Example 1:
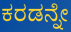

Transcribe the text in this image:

ಕರಡನ್ನೇ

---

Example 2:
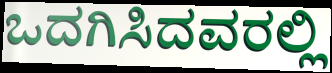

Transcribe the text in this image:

ಒದಗಿಸಿದವರಲ್ಲಿ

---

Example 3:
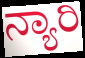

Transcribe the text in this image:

ನ್ಯಾರಿ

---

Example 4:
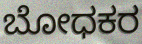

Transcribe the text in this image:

ಬೋಧಕರ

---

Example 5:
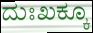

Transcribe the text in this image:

ದುಃಖಕ್ಕೂ